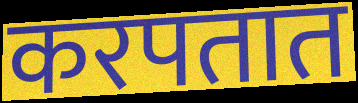
करपतात